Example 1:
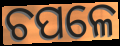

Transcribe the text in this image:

ଚପଳେ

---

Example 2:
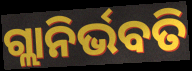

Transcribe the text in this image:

ଗ୍ଲାନିର୍ଭବତି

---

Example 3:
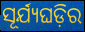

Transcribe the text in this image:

ସୂର୍ଯ୍ୟଘଡ଼ିର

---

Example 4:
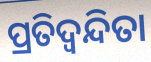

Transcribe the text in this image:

ପ୍ରତିଦ୍ଵନ୍ଦିତା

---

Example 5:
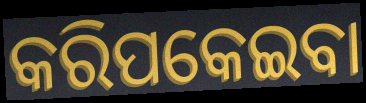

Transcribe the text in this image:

କରିପକେଇବା